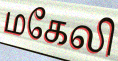
மகேலி